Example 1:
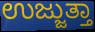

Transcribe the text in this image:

ಉಜ್ಜುತ್ತಾ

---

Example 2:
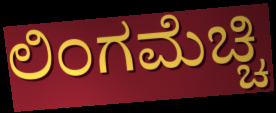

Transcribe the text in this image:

ಲಿಂಗಮೆಚ್ಚಿ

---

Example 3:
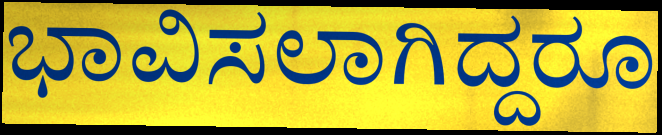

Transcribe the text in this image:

ಭಾವಿಸಲಾಗಿದ್ದರೂ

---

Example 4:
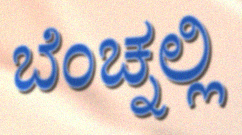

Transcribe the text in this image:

ಬೆಂಚ್ನಲ್ಲಿ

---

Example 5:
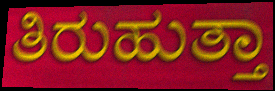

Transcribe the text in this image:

ತಿರುಹುತ್ತಾ